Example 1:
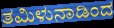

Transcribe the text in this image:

ತಮಿಳುನಾಡಿಂದ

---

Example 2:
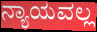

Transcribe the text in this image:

ನ್ಯಾಯವಲ್ಲ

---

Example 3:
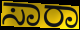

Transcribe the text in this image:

ಸಾರಾ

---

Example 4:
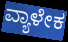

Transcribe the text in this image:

ವ್ಯಾಳೇಕ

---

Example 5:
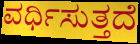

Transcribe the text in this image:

ವರ್ಧಿಸುತ್ತದೆ